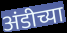
अंडीच्या